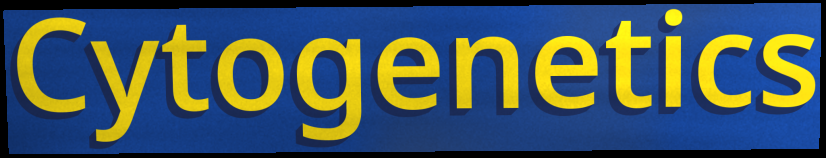
Cytogenetics